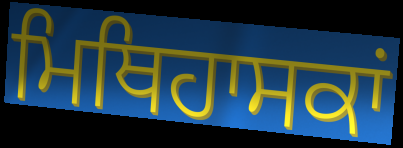
ਮਿਥਿਹਾਸਕਾਂ